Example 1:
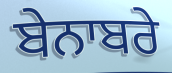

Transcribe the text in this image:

ਬੇਨਾਬਰੇ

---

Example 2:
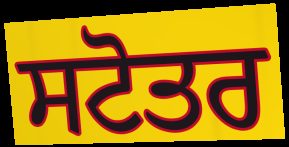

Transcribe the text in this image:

ਸਟੋਤਰ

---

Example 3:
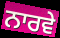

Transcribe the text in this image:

ਨਾਰਵੇ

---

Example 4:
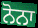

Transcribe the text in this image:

ਨੋਨਾ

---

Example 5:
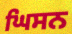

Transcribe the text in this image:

ਘਿਸਨ